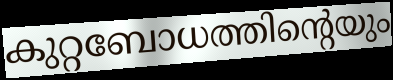
കുറ്റബോധത്തിന്റെയും